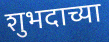
शुभदाच्या